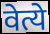
वेत्ये